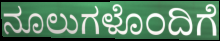
ನೂಲುಗಳೊಂದಿಗೆ